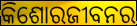
କିଶୋରଜୀବନର